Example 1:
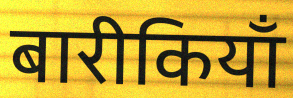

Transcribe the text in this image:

बारीकियाँ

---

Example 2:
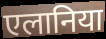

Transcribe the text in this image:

एलानिया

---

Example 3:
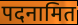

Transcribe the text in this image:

पदनामित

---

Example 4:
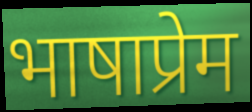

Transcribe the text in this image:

भाषाप्रेम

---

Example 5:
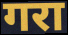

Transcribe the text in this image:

गरा